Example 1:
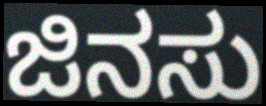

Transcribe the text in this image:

ಜಿನಸು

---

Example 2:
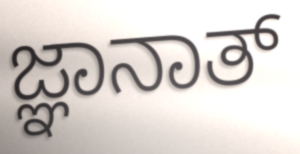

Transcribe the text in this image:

ಜ್ಞಾನಾತ್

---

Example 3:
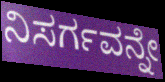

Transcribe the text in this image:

ನಿಸರ್ಗವನ್ನೇ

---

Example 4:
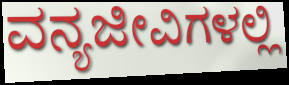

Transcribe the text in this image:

ವನ್ಯಜೀವಿಗಳಲ್ಲಿ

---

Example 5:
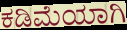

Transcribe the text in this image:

ಕಡಿಮೆಯಾಗಿ